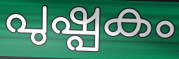
പുഷ്പകം